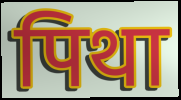
पिथा